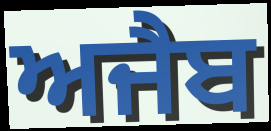
ਅਜੈਬ